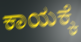
ಕಾಯಕ್ಕೆ